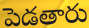
పెడతారు